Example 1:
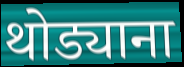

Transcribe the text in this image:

थोड्याना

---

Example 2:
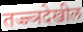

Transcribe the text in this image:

तज्ज्ञदेखील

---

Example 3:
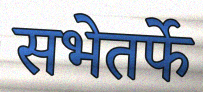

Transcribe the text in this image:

सभेतर्फे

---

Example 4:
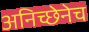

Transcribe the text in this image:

अनिच्छेनेच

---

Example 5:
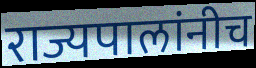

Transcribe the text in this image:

राज्यपालांनीच